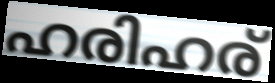
ഹരിഹര്